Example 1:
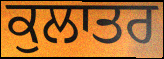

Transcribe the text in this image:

ਕੁਲਾਤਰ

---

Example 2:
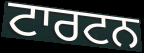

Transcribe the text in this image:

ਟਾਰਟਨ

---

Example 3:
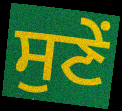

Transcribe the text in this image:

ਸੁਣੇਂ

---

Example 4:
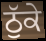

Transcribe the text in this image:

ਠੁੱਕੇ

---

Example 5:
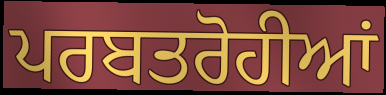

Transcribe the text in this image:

ਪਰਬਤਰੋਹੀਆਂ